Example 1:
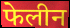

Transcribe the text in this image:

फेलीन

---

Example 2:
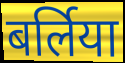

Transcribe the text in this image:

बर्लिया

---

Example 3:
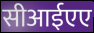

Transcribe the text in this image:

सीआईएए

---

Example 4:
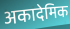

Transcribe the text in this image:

अकादेमिक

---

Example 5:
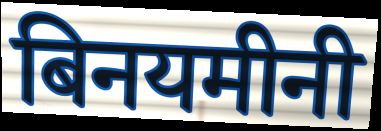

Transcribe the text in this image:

बिनयमीनी